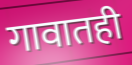
गावातही